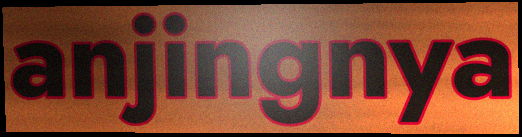
anjingnya